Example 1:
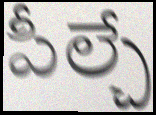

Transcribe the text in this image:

పీల్చే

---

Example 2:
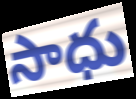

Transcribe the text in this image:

సాధు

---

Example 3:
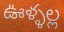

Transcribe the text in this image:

ఊళ్ళల్ల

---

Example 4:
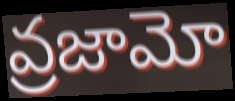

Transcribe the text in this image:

వ్రజామో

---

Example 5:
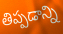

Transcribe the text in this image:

తిప్పడాన్ని